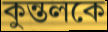
কুন্তলকে